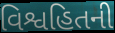
વિશ્વહિતની